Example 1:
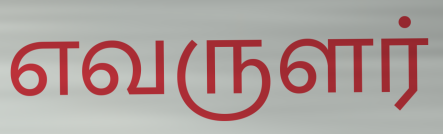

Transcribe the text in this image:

எவருளர்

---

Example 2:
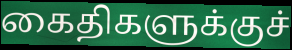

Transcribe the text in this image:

கைதிகளுக்குச்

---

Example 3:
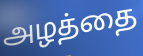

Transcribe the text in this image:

அழத்தை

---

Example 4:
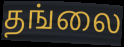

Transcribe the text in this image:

தங்லை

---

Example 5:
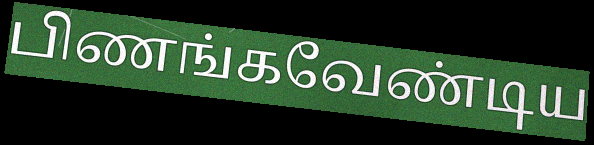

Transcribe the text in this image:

பிணங்கவேண்டிய